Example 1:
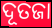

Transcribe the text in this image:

ଦୂତଜା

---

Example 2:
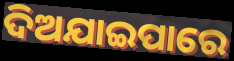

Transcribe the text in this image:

ଦିଅଯାଇପାରେ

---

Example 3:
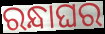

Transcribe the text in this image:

ରନ୍ଧାଘର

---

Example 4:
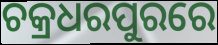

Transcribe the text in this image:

ଚକ୍ରଧରପୁରରେ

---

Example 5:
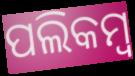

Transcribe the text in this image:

ପଲିକମ୍ବ